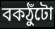
বকঠুঁটো